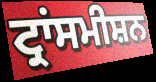
ਟ੍ਰਾਂਸਮੀਸ਼ਨ